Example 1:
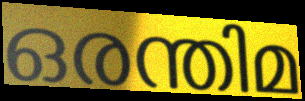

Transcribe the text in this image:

ഒരന്തിമ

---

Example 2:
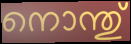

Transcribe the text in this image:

നൊന്തു്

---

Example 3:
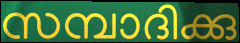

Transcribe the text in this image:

സമ്പാദിക്കു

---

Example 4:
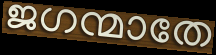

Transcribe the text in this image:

ജഗന്മാതേ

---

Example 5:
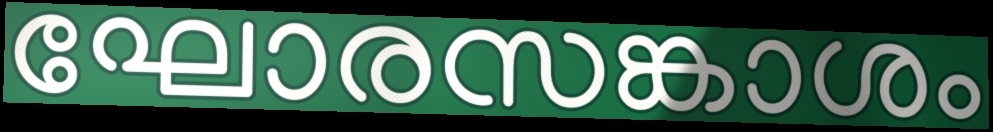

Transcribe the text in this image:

ഘോരസങ്കാശം